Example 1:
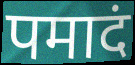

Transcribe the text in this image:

पमादं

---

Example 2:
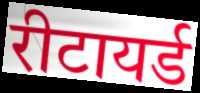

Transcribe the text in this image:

रीटायर्ड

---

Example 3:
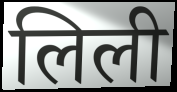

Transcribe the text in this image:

लिली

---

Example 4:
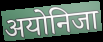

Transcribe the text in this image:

अयोनिजा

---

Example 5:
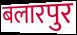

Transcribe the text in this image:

बलारपुर